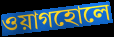
ওয়াগহোলে